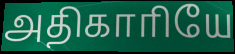
அதிகாரியே